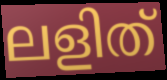
ലളിത്